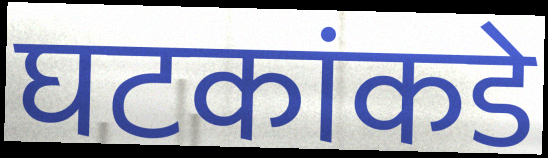
घटकांकडे